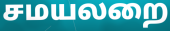
சமயலறை